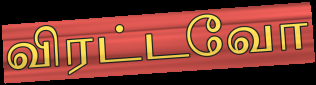
விரட்டவோ